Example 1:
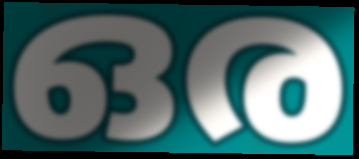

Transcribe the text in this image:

ഒര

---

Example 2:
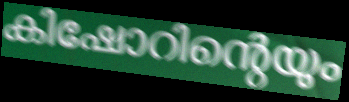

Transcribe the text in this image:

കിഷോറിന്റെയും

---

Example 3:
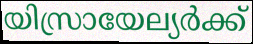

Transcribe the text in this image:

യിസ്രായേല്യർക്ക്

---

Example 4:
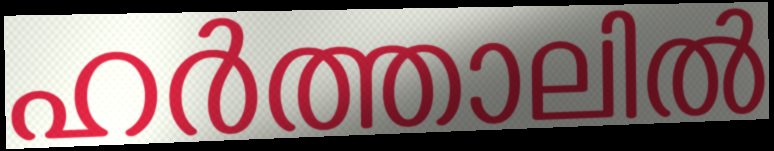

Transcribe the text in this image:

ഹർത്താലിൽ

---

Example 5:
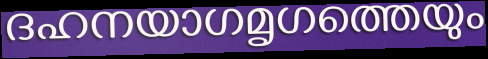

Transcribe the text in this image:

ദഹനയാഗമൃഗത്തെയും